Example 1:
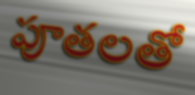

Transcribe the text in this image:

పూతలతో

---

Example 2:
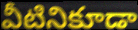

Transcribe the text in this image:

వీటినికూడా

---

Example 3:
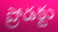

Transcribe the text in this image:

ప్రోడక్టు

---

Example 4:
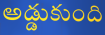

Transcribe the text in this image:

అడ్డుకుంది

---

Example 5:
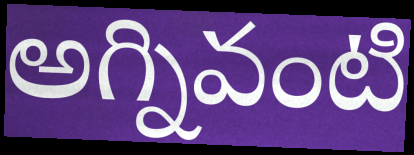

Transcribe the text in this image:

అగ్నివంటి